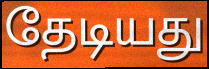
தேடியது